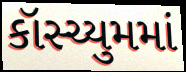
કૉસ્ચ્યુમમાં